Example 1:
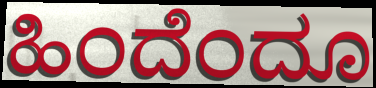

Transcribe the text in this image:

ಹಿಂದೆಂದೂ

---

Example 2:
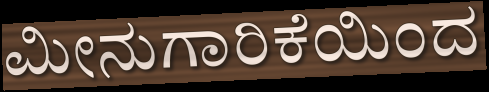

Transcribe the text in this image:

ಮೀನುಗಾರಿಕೆಯಿಂದ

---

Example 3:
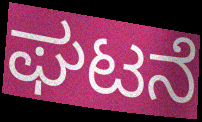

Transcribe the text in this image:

ಘಟನೆ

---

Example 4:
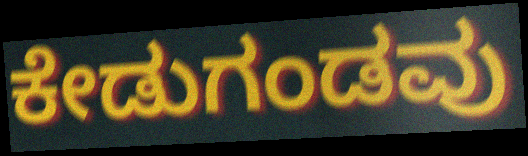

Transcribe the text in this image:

ಕೇಡುಗಂಡವು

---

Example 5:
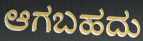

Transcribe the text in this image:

ಆಗಬಹದು